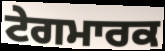
ਟੇਗਮਾਰਕ